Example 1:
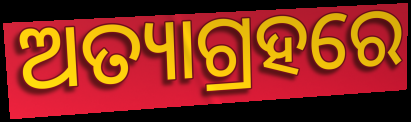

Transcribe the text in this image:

ଅତ୍ୟାଗ୍ରହରେ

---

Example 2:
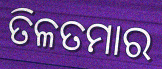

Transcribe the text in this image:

ତିଳତମାର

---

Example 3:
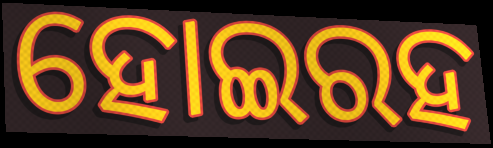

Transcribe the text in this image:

ହୋଇରହ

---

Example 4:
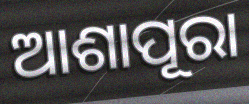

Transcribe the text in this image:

ଆଶାପୂରା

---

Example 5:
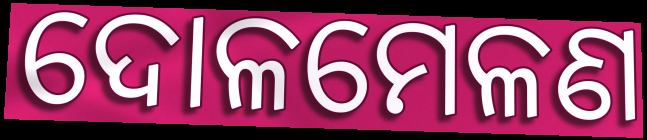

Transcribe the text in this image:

ଦୋଳମେଳଣ